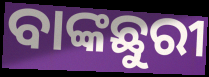
ବାଙ୍କଛୁରୀ